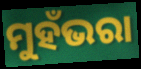
ମୁହଁଭରା